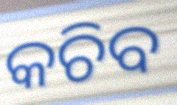
କଚିବ